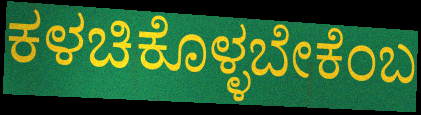
ಕಳಚಿಕೊಳ್ಳಬೇಕೆಂಬ